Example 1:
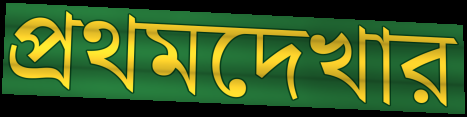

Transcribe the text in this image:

প্রথমদেখার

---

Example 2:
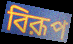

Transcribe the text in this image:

বিরূপ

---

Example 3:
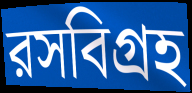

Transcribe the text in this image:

রসবিগ্রহ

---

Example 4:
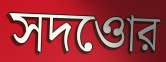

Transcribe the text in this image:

সদওোর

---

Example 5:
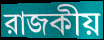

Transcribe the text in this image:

রাজকীয়